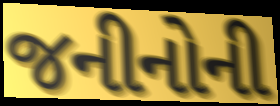
જનીનોની